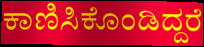
ಕಾಣಿಸಿಕೊಂಡಿದ್ದರೆ